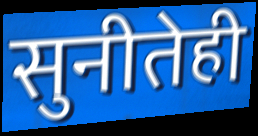
सुनीतेही